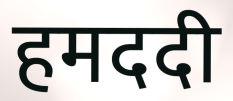
हमददी